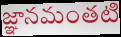
జ్ఞానమంతటి